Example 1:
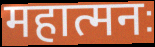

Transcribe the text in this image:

महात्मनः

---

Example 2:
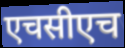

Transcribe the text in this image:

एचसीएच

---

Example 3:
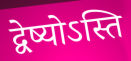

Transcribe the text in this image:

द्वेष्योऽस्ति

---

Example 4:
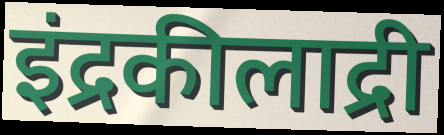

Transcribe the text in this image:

इंद्रकीलाद्री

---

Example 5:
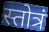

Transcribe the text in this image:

स्तोत्रं